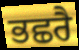
ਭਛਰੈ